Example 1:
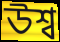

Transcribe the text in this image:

উশ্ব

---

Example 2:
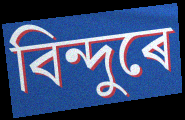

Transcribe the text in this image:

বিন্দুৰে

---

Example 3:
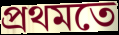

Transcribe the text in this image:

প্ৰথমতে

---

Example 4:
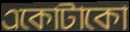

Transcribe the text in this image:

একোটাকো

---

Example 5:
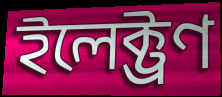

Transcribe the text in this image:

ইলেক্ট্ৰণ